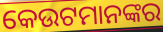
କେଉଟମାନଙ୍କର